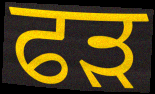
ਫੜ